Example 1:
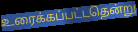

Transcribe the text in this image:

உரைக்கப்பட்டதென்று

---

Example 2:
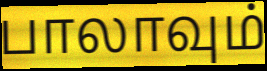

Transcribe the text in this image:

பாலாவும்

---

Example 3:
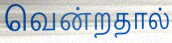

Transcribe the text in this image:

வென்றதால்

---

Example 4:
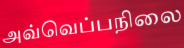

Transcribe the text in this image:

அவ்வெப்பநிலை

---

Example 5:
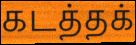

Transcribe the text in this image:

கடத்தக்